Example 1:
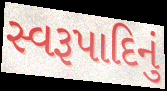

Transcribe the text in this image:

સ્વરૂપાદિનું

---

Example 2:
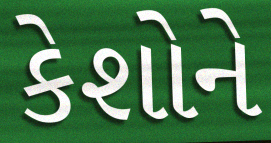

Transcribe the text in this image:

કેશોને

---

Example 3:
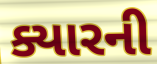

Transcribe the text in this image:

ક્યારની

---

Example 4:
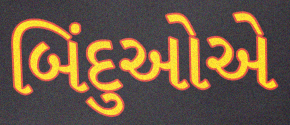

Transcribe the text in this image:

બિંદુઓએ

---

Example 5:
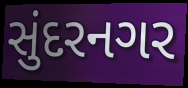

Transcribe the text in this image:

સુંદરનગર